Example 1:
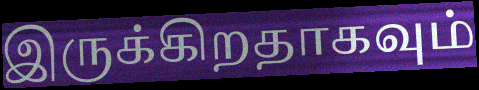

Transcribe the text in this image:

இருக்கிறதாகவும்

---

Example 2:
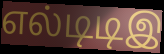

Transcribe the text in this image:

எல்டிடிஇ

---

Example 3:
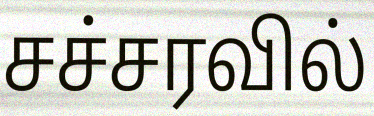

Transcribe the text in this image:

சச்சரவில்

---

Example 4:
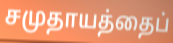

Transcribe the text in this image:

சமுதாயத்தைப்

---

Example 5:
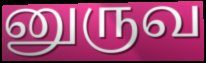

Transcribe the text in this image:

னுருவ